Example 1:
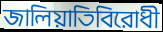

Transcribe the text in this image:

জালিয়াতিবিরোধী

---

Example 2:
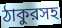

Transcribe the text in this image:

ঠাকুরসহ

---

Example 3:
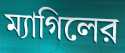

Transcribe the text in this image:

ম্যাগিলের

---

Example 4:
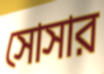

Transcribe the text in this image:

সোসার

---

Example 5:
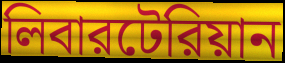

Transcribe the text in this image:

লিবারটেরিয়ান